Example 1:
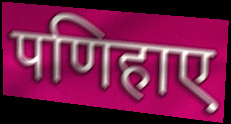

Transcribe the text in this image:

पणिहाए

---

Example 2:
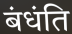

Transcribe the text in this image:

बंधंति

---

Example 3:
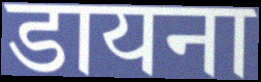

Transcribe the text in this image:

डायना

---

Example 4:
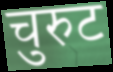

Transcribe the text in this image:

चुरुट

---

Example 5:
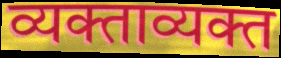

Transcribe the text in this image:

व्यक्ताव्यक्त